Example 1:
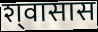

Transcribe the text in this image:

श्वासास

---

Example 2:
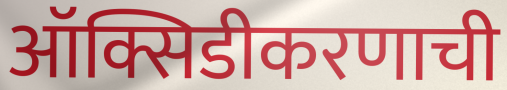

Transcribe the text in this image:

ऑक्सिडीकरणाची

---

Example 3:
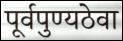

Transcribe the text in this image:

पूर्वपुण्यठेवा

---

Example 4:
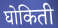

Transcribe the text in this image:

घोकिती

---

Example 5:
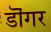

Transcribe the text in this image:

डॊंगर